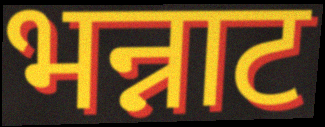
भन्नाट